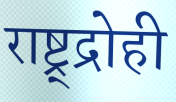
राष्ट्र्द्रोही